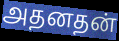
அதனதன்